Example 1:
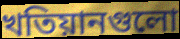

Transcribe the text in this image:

খতিয়ানগুলো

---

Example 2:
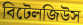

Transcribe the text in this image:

বিটেলজিউস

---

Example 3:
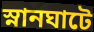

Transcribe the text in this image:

স্নানঘাটে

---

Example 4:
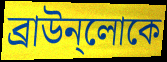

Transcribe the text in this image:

ব্রাউন্লোকে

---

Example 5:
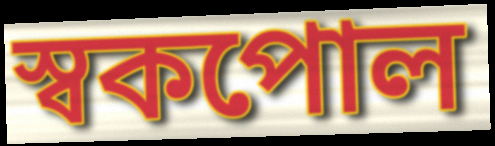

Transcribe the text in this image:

স্বকপোল